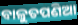
ବାଳୁତପଣିଆ